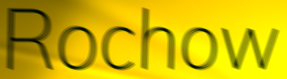
Rochow